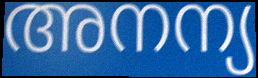
അനന്യ